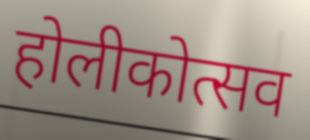
होलीकोत्सव